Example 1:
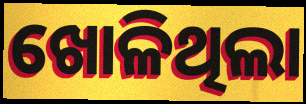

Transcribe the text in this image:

ଖୋଳିଥିଲା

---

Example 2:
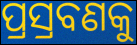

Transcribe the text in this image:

ପ୍ରସ୍ରବଣକୁ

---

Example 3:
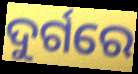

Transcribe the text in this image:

ଦୁର୍ଗରେ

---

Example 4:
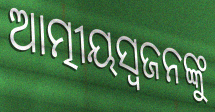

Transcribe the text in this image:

ଆତ୍ମୀୟସ୍ୱଜନଙ୍କୁ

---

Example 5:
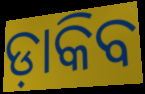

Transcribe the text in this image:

ଡ଼ାକିବ